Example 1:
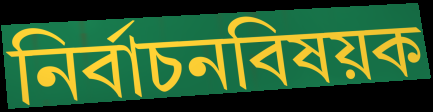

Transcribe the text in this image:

নির্বাচনবিষয়ক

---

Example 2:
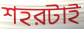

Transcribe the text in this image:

শহরটাই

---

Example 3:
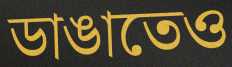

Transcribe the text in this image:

ডাঙাতেও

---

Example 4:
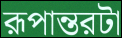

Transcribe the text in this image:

রূপান্তরটা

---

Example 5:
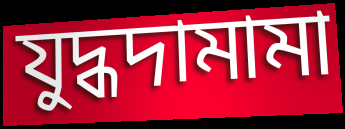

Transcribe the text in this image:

যুদ্ধদামামা